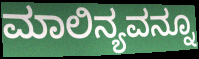
ಮಾಲಿನ್ಯವನ್ನೂ